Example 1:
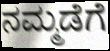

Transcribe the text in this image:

ನಮ್ಮಡೆಗೆ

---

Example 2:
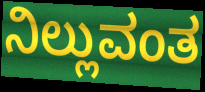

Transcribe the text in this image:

ನಿಲ್ಲುವಂತ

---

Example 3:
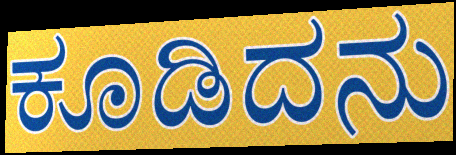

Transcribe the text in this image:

ಕೂಡಿದನು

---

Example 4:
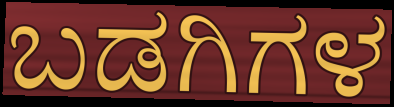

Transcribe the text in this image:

ಬಡಗಿಗಳ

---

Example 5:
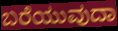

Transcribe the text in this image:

ಬರೆಯುವುದಾ